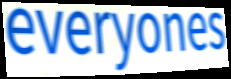
everyones